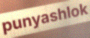
punyashlok